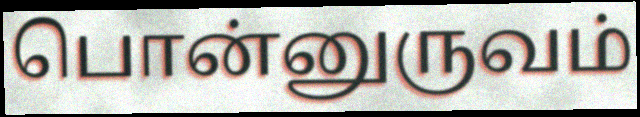
பொன்னுருவம்